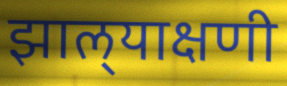
झाल्याक्षणी